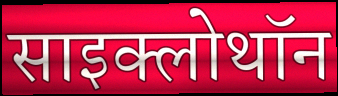
साइक्लोथॉन